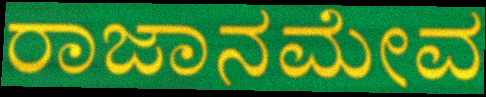
ರಾಜಾನಮೇವ